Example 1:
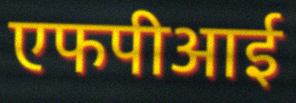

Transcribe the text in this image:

एफपीआई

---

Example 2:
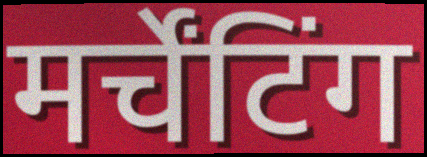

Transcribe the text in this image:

मर्चेंटिंग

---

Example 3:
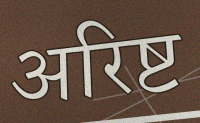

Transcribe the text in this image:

अरिष्ट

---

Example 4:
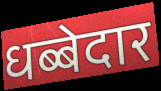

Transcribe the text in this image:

धब्बेदार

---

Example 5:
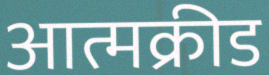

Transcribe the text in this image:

आत्मक्रीड